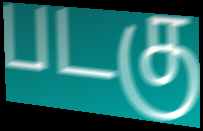
படகு